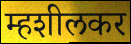
म्हशीलकर